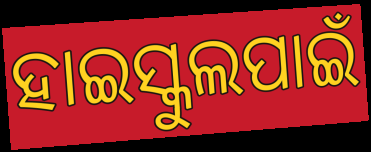
ହାଇସ୍କୁଲପାଇଁ